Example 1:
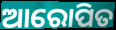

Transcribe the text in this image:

ଆରୋପିତ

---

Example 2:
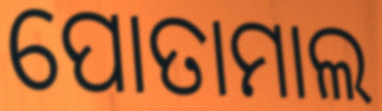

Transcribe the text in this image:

ପୋତାମାଲ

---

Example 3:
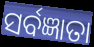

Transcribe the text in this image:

ସର୍ବଜ୍ଞାତା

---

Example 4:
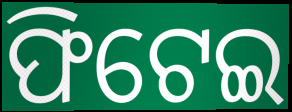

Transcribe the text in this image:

ଫିଟେଇ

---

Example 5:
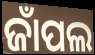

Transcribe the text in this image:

ଜାଁପଲ